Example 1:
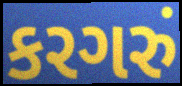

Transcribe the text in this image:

કરગરું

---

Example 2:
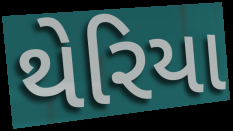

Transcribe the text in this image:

થેરિયા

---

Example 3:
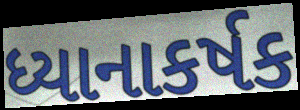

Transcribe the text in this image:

ધ્યાનાકર્ષક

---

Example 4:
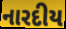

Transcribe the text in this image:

નારદીય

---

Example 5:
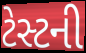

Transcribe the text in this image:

ટેસ્ટની